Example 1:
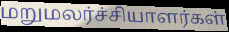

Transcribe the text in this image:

மறுமலர்ச்சியாளர்கள்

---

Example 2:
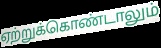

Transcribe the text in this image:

ஏற்றுக்கொண்டாலும்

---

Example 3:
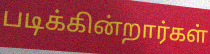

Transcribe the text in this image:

படிக்கின்றார்கள்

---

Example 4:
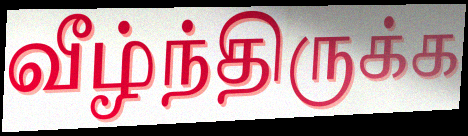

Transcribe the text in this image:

வீழ்ந்திருக்க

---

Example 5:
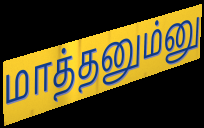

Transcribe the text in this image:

மாத்தனும்னு